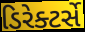
ડિરેક્ટર્સે